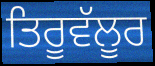
ਤਿਰੂਵੱਲੂਰ